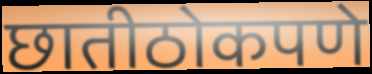
छातीठोकपणे